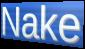
Nake